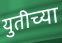
युतीच्या